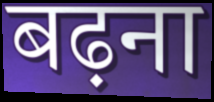
बढ़ना